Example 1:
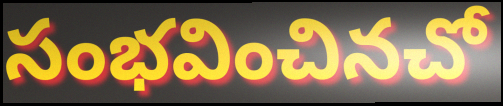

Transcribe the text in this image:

సంభవించినచో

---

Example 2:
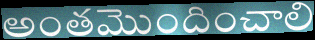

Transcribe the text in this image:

అంతమొందించాలి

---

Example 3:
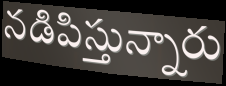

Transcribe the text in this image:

నడిపిస్తున్నారు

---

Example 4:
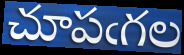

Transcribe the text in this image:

చూపఁగల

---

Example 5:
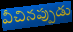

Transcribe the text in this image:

వీచినప్పుడు